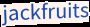
jackfruits